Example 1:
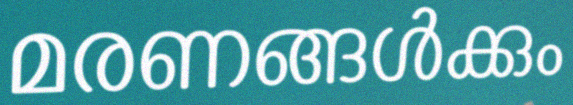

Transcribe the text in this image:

മരണങ്ങൾക്കും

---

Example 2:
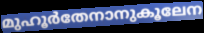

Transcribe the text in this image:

മുഹൂർതേനാനുകൂലേന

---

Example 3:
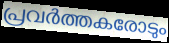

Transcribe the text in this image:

പ്രവർത്തകരോടും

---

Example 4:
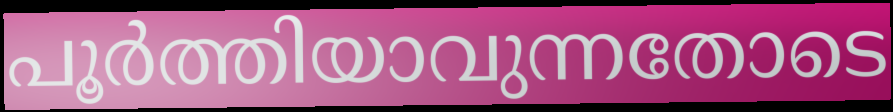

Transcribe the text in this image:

പൂർത്തിയാവുന്നതോടെ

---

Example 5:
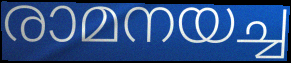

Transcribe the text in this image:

രാമനയച്ച